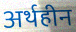
अर्थहीन